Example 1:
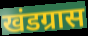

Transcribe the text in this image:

खंडग्रास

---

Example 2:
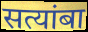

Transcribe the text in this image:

सत्यांबा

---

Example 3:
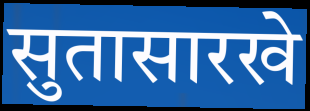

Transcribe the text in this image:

सुतासारखे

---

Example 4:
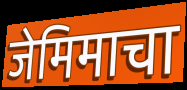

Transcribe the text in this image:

जेमिमाचा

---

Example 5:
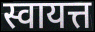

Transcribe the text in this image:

स्वायत्त